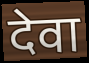
देवा